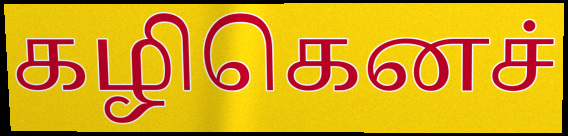
கழிகெனச்